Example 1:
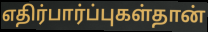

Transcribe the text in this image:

எதிர்பார்ப்புகள்தான்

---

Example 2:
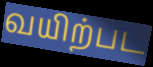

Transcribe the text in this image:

வயிற்பட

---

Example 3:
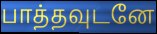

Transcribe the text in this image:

பாத்தவுடனே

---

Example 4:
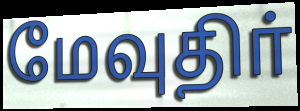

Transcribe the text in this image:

மேவுதிர்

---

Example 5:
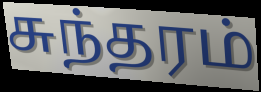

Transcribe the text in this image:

சுந்தரம்